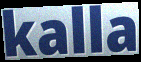
kalla